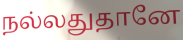
நல்லதுதானே